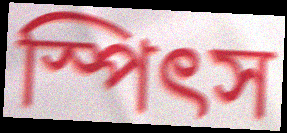
স্পিৎস